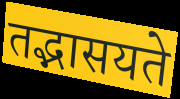
तद्भासयते